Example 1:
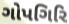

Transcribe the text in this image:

ગોપગિરિ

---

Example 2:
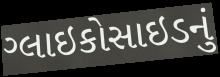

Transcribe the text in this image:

ગ્લાઇકોસાઇડનું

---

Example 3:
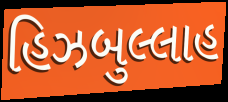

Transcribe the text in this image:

હિઝબુલ્લાહ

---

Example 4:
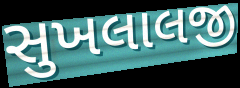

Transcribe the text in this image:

સુખલાલજી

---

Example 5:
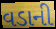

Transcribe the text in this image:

વડાની